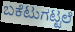
ಬಕೆಟುಗಟ್ಟಲೆ